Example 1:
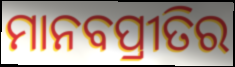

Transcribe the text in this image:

ମାନବପ୍ରୀତିର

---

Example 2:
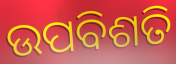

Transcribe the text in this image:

ଉପବିଶତି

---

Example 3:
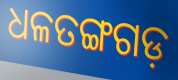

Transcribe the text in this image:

ଧଳତଙ୍ଗଗଡ଼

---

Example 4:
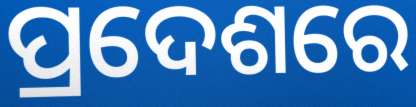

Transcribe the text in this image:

ପ୍ରଦେଶରେ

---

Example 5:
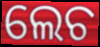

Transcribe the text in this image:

ଲେଚ